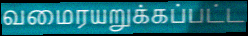
வமைரயறுக்கப்பட்ட